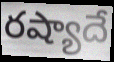
రష్యాదే